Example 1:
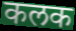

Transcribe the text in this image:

कलक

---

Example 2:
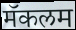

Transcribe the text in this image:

मॅकलम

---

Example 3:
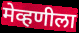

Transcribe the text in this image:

मेव्हणीला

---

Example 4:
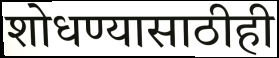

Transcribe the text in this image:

शोधण्यासाठीही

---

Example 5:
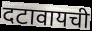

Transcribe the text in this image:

दटावायची